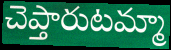
చెప్తారుటమ్మా